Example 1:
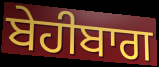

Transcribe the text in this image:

ਬੇਹੀਬਾਗ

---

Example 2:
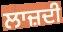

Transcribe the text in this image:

ਲਾਜ਼ਦੀ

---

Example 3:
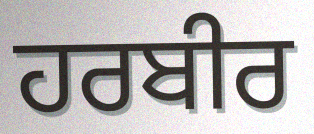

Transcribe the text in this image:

ਹਰਬੀਰ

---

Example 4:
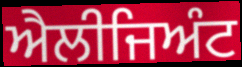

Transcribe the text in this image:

ਐਲੀਜਿਅੰਟ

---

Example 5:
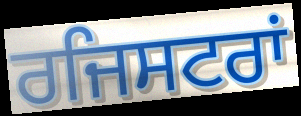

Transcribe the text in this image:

ਰਜਿਸਟਰਾਂ